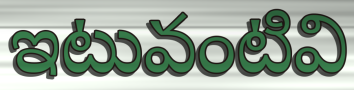
ఇటువంటివి